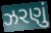
ઝરણું